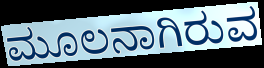
ಮೂಲನಾಗಿರುವ